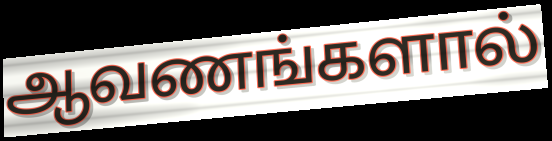
ஆவணங்களால்